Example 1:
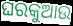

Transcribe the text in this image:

ଘରକୁଆଉ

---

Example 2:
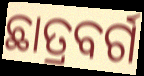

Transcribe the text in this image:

ଛାତ୍ରବର୍ଗ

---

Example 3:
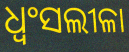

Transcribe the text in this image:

ଧ୍ୱଂସଲୀଳା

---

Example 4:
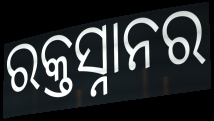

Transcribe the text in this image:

ରକ୍ତସ୍ନାନର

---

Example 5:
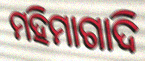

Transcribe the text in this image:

ମହିମାଗାଦି